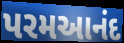
પરમઆનંદ